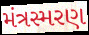
મંત્રસ્મરણ